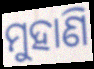
ମୁହାଣି